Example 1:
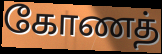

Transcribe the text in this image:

கோணத்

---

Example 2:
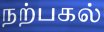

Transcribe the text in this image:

நற்பகல்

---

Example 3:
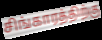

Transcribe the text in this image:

சிங்காரத்திற்கு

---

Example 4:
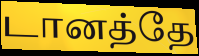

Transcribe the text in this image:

டானத்தே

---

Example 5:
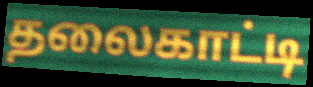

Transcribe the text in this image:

தலைகாட்டி